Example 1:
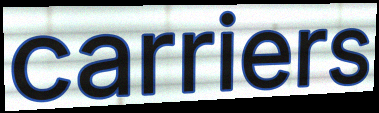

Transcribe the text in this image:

carriers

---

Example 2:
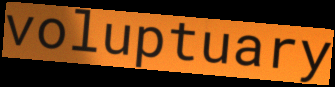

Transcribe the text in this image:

voluptuary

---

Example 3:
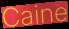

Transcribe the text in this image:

Caine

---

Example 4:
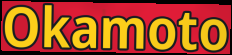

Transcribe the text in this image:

Okamoto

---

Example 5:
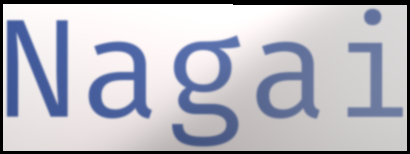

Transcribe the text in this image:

Nagai